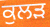
ਕੁਲੜ